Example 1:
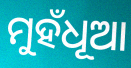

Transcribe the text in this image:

ମୁହଁଧୂଆ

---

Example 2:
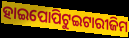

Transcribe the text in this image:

ହାଇପୋପିଟୁଇଟାରୀଜିମ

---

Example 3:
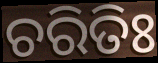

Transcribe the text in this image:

ଚରିତିଃ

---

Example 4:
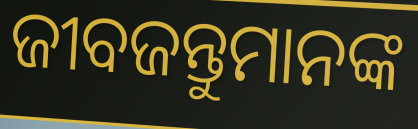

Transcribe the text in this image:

ଜୀବଜନ୍ତୁମାନଙ୍କ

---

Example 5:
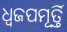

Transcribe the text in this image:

ଧ୍ୱଜପମୂର୍ତ୍ତି